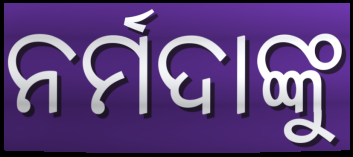
ନର୍ମଦାଙ୍କୁ